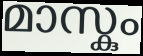
മാസ്കും